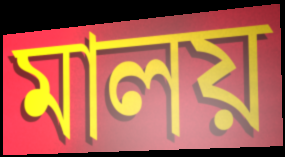
মালয়